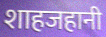
शाहजहानी